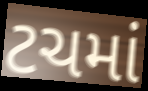
ટચમાં